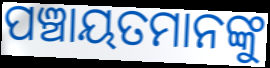
ପଞ୍ଚାୟତମାନଙ୍କୁ